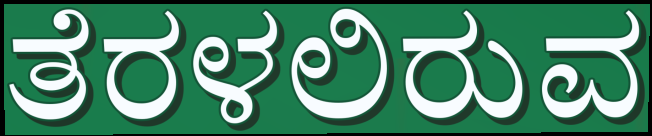
ತೆರಳಲಿರುವ